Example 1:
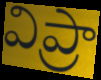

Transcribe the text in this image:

విప్రా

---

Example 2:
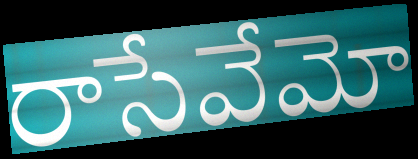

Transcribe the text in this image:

రాసేవేమో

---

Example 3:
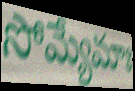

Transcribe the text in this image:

సోమ్యేమాః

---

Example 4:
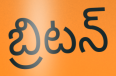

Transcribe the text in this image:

బ్రిటన్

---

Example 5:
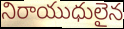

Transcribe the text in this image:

నిరాయుధులైన